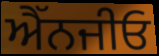
ਐੱਨਜੀਓ